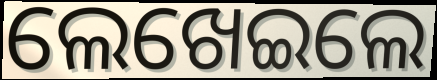
ଲେଖେଇଲେ